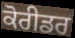
ਕੋਰੀਡਰ